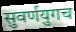
सुवर्णयुगच